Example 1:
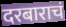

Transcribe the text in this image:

दरबाराचं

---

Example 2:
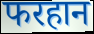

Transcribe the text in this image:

फरहान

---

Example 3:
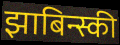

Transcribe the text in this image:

झाबिन्स्की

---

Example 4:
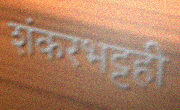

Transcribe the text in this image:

शंकरभट्टही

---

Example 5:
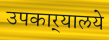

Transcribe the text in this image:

उपकार्यालये